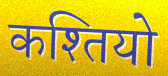
कश्तियो